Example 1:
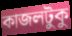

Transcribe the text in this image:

কাজলটুকু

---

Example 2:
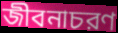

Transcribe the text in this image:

জীবনাচরণ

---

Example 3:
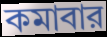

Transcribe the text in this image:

কমাবার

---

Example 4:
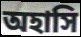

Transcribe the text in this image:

অহাসি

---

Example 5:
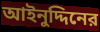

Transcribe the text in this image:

আইনুদ্দিনের